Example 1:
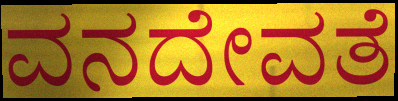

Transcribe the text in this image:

ವನದೇವತೆ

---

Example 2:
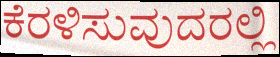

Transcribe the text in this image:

ಕೆರಳಿಸುವುದರಲ್ಲಿ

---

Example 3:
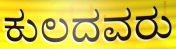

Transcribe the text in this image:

ಕುಲದವರು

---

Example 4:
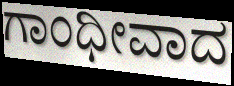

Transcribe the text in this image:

ಗಾಂಧೀವಾದ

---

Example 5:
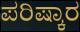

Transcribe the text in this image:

ಪರಿಷ್ಕಾರ